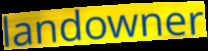
landowner